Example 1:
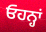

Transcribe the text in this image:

ਓਹਨ੍ਹਾਂ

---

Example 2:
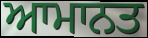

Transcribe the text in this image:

ਆਮਾਨਤ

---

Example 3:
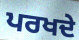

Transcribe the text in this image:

ਪਰਖਦੇ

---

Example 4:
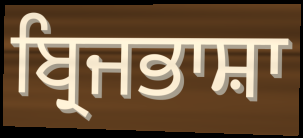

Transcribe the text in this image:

ਬ੍ਰਿਜਭਾਸ਼ਾ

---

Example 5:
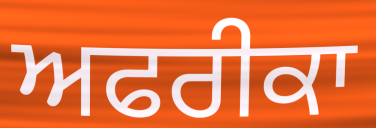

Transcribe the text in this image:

ਅਫਰੀਕਾ